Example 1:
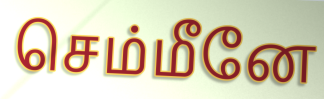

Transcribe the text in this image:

செம்மீனே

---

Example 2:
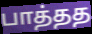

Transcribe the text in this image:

பாத்தத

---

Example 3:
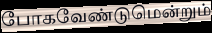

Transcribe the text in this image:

போகவேண்டுமென்றும்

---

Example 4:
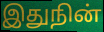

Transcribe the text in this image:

இதுநின்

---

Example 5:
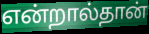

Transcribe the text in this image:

என்றால்தான்